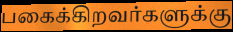
பகைக்கிறவர்களுக்கு